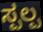
ಸ್ಪಲ್ಪ